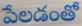
పేలడంతో